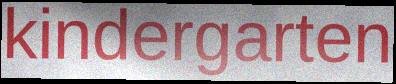
kindergarten